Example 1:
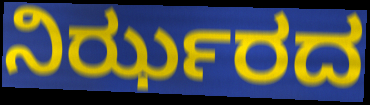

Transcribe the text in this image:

ನಿರ್ಝರದ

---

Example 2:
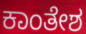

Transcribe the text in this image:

ಕಾಂತೇಶ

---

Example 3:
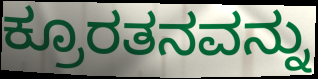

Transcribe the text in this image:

ಕ್ರೂರತನವನ್ನು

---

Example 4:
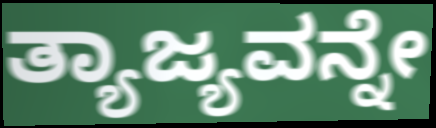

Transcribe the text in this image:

ತ್ಯಾಜ್ಯವನ್ನೇ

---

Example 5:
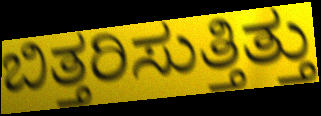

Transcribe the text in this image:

ಬಿತ್ತರಿಸುತ್ತಿತ್ತು